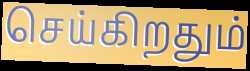
செய்கிறதும்